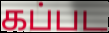
கப்பட